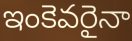
ఇంకెవరైనా